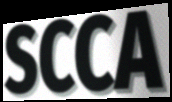
SCCA